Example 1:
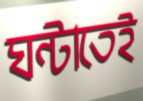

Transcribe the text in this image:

ঘন্টাতেই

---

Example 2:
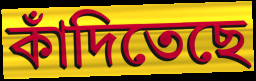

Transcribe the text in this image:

কাঁদিতেছে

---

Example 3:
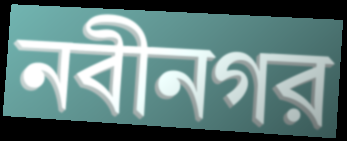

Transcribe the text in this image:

নবীনগর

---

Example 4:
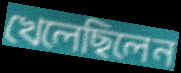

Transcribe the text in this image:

খেলেছিলেন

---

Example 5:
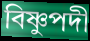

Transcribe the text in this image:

বিষ্ণুপদী